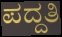
ಪದ್ದತಿ